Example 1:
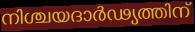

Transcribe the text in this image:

നിശ്ചയദാർഢ്യത്തിന്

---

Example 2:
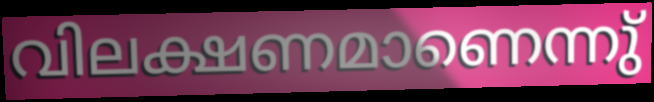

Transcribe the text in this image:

വിലക്ഷണമാണെന്നു്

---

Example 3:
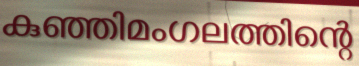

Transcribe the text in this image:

കുഞ്ഞിമംഗലത്തിന്റെ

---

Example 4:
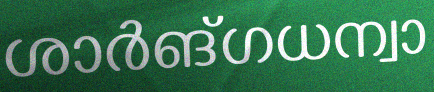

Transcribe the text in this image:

ശാർങ്ഗധന്വാ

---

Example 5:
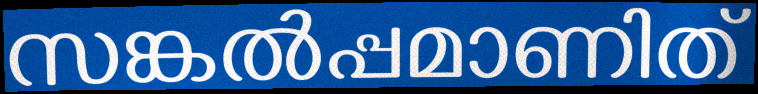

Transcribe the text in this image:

സങ്കൽപ്പമാണിത്